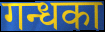
गन्धका